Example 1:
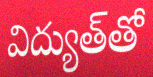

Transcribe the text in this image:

విద్యుత్‌తో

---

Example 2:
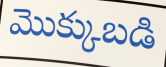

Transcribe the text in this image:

మొక్కుబడి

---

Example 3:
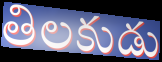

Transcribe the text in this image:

తిలకుడు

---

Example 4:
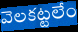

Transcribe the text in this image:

వెలకట్టలేం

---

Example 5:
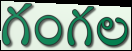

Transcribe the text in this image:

గంగల